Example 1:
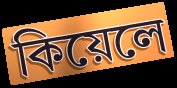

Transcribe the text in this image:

কিয়েলে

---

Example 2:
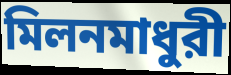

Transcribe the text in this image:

মিলনমাধুরী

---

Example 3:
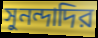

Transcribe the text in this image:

সুনন্দাদির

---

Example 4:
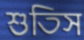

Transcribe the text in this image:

শুতিস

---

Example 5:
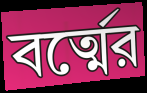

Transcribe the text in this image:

বর্ত্মের